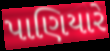
પાણિયારે